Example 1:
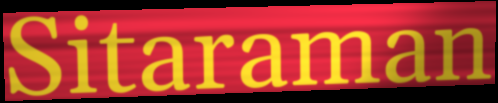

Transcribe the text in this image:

Sitaraman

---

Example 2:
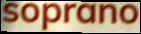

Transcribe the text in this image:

soprano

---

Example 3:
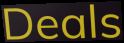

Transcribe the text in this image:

Deals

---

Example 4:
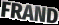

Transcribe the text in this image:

FRAND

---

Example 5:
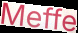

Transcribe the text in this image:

Meffe